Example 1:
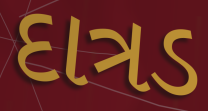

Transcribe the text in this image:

દાત્રડ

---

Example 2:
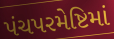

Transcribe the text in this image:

પંચપરમેષ્ટિમાં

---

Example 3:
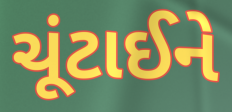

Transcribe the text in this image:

ચૂંટાઈને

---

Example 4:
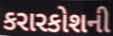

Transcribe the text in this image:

કરારકોશની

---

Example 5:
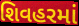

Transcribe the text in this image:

શિવહરમાં